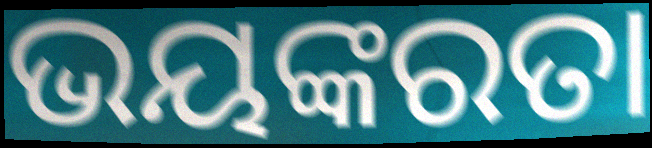
ଭୟଙ୍କରତା